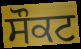
ਸੌਕਟ